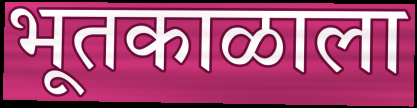
भूतकाळाला